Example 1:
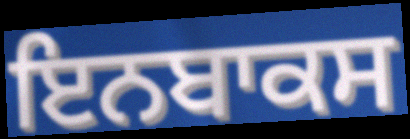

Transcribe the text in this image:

ਇਨਬਾਕਸ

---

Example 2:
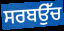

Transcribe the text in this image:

ਸਰਬਉੱਚ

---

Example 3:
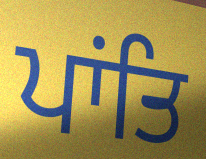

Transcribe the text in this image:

ਪਾਂਤਿ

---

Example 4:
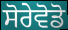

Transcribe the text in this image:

ਸੋਰੇਵੋਡੋ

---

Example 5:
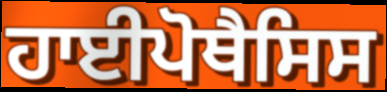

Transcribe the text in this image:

ਹਾਈਪੋਥੈਸਿਸ